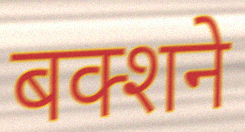
बक्शने